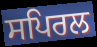
ਸਪਿਰਲ